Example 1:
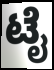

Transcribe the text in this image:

ಟೈ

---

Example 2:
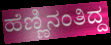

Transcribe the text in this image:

ಹೆಣ್ಣಿನಂತಿದ್ದ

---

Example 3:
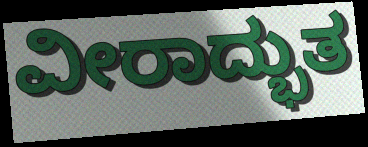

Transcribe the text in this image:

ವೀರಾದ್ಭುತ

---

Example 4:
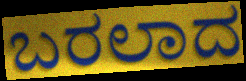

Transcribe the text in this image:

ಬರಲಾದ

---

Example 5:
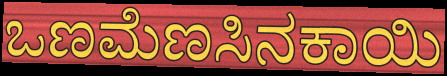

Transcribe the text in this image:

ಒಣಮೆಣಸಿನಕಾಯಿ